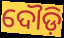
ଦୌଡ଼ି